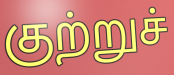
குற்றுச்